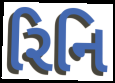
રિનિ